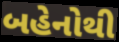
બહેનોથી